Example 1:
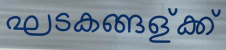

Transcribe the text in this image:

ഘടകങ്ങള്ക്ക്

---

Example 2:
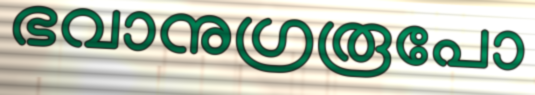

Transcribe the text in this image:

ഭവാനുഗ്രരൂപോ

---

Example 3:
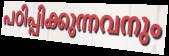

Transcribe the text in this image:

പഠിപ്പിക്കുന്നവനും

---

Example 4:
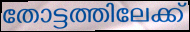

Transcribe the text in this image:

തോട്ടത്തിലേക്ക്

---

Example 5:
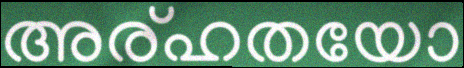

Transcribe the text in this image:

അര്ഹതയോ